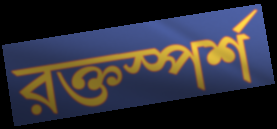
রক্তস্পর্শ